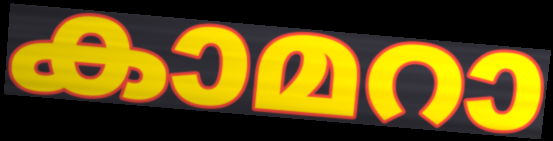
കാമറാ